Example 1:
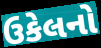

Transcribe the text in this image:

ઉકેલનો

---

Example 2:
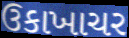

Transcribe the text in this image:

ઉકાખાચર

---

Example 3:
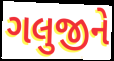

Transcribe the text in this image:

ગલુજીને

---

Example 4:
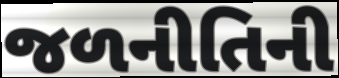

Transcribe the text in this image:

જળનીતિની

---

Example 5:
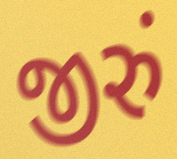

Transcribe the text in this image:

જીરું